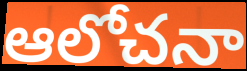
ఆలోచనా